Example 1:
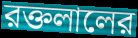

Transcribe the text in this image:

রক্তলালের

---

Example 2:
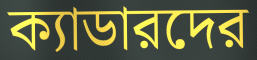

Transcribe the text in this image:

ক্যাডারদের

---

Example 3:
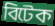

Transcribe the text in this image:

বিটেক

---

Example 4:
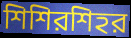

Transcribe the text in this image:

শিশিরশিহর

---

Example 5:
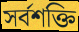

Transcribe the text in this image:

সর্বশক্তি